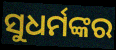
ସୁଧର୍ମଙ୍କର